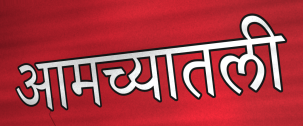
आमच्यातली